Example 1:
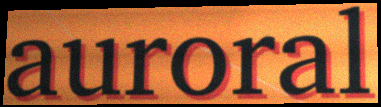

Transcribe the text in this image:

auroral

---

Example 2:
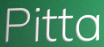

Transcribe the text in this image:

Pitta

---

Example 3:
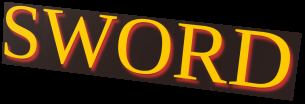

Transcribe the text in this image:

SWORD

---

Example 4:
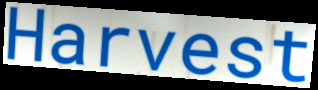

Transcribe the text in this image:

Harvest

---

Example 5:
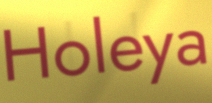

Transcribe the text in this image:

Holeya